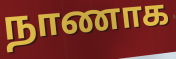
நாணாக